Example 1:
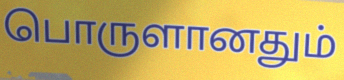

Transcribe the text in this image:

பொருளானதும்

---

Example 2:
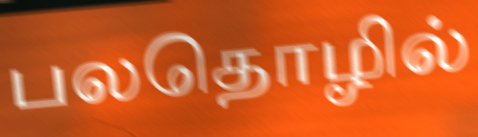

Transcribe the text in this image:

பலதொழில்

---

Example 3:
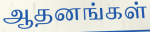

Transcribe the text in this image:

ஆதனங்கள்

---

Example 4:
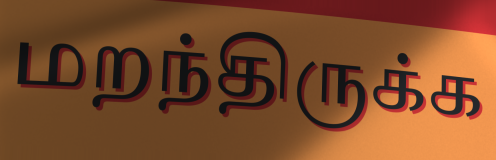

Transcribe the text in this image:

மறந்திருக்க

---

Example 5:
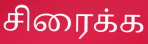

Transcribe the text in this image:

சிரைக்க